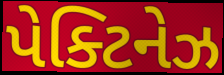
પેક્ટિનેઝ